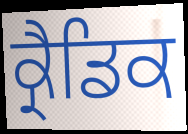
ਕ੍ਰੈਡਿਕ